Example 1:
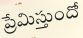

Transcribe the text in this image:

ప్రేమిస్తుందో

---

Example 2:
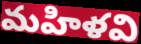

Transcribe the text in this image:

మహిళవి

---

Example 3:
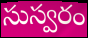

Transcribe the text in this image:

సుస్వరం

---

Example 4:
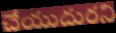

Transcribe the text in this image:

చేయుదురని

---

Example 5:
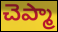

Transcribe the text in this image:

చెప్మా